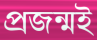
প্রজন্মই